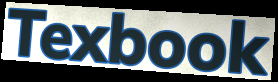
Texbook